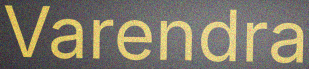
Varendra